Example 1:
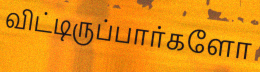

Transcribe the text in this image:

விட்டிருப்பார்களோ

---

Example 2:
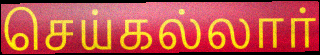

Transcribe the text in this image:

செய்கல்லார்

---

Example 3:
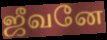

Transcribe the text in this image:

ஜீவனே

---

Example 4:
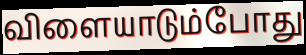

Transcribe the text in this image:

விளையாடும்போது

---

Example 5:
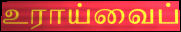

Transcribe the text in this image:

உராய்வைப்